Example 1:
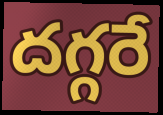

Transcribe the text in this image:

దగ్గరే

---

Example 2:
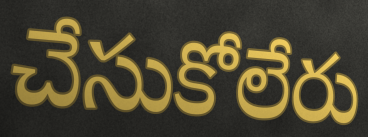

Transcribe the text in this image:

చేసుకోలేరు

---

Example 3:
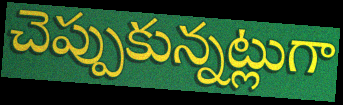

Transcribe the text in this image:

చెప్పుకున్నట్లుగా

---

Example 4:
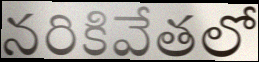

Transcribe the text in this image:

నరికివేతలో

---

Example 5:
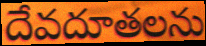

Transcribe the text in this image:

దేవదూతలను